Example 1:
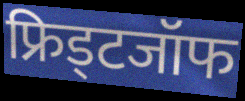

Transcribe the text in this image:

फ्रिड्टजॉफ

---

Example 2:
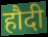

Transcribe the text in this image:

हौदी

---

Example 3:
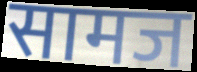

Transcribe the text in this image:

सामज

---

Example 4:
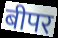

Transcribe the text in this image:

बीपर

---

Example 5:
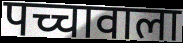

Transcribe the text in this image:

पच्चावाला